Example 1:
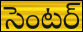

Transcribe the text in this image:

సెంటర్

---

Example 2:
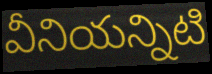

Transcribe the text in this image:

వీనియన్నిటి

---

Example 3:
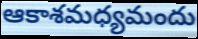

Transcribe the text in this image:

ఆకాశమధ్యమందు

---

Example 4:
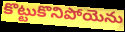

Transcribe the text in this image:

కొట్టుకొనిపోయెను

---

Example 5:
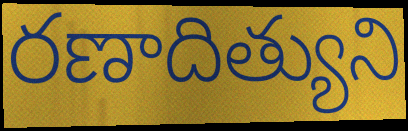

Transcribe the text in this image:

రణాదిత్యుని